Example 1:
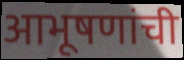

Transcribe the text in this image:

आभूषणांची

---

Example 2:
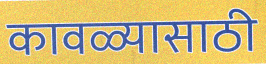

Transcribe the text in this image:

कावळ्यासाठी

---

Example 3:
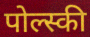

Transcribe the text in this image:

पोल्स्की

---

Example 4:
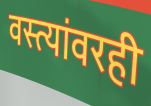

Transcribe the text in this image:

वस्त्यांवरही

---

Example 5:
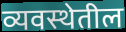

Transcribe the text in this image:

व्यवस्थेतील